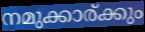
നമുക്കാര്ക്കും